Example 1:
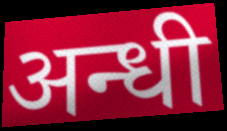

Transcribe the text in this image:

अन्धी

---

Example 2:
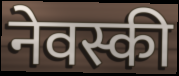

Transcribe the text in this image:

नेवस्की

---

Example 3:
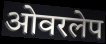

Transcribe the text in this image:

ओवरलेप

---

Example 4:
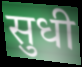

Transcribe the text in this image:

सुधी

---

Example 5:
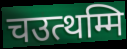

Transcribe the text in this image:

चउत्थम्मि